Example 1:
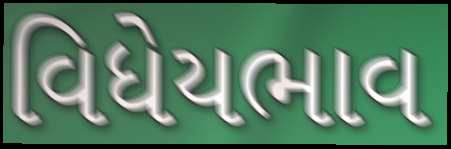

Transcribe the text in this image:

વિધેયભાવ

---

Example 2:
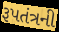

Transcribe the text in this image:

રૂપતંત્રની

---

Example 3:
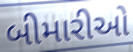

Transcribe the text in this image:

બીમારીઓ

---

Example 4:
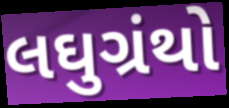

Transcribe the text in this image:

લઘુગ્રંથો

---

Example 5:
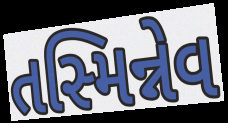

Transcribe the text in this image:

તસ્મિન્નેવ